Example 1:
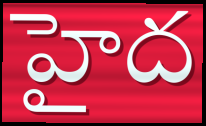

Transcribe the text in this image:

హైద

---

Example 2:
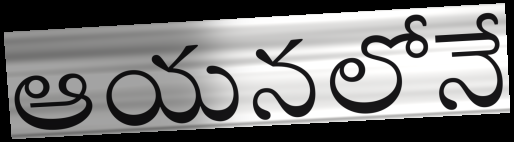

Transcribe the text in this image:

ఆయనలోనే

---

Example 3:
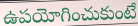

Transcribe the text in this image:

ఉపయోగించుకుంటే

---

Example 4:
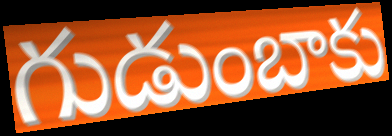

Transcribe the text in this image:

గుడుంబాకు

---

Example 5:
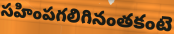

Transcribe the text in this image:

సహింపగలిగినంతకంటె